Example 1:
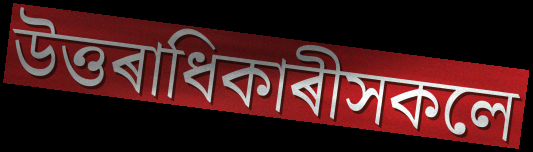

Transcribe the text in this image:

উত্তৰাধিকাৰীসকলে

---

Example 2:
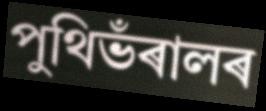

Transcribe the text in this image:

পুথিভঁৰালৰ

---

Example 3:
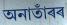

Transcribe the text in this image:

অনাতাঁৰৰ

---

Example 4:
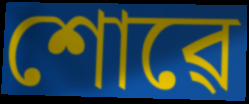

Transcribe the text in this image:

শোৱে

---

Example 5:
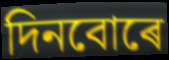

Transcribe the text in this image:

দিনবোৰে